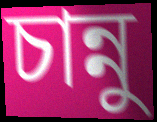
চান্নু